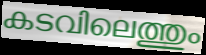
കടവിലെത്തും